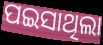
ପଇସାଥିଲା